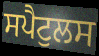
ਸਪੈਟੁਲਸ